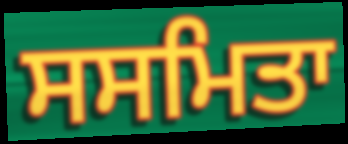
ਸਸਮਿਤਾ